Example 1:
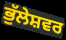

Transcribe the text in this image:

ਭੁੱਲੇਸ਼ਵਰ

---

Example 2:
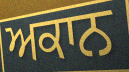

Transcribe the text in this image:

ਅਕਾਨ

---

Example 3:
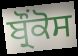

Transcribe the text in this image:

ਬ੍ਰੌਂਕੋਸ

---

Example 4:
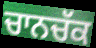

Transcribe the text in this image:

ਚਾਨਚੱਕ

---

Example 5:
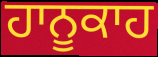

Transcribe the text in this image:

ਹਾਨੂਕਾਹ